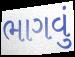
ભાગવું